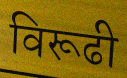
विरूढी